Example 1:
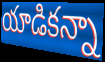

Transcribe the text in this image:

యాడికన్నా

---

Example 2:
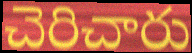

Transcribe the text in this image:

చెరిచారు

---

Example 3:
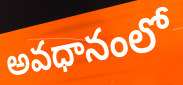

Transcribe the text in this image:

అవధానంలో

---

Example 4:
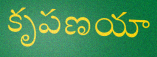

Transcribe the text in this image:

కృపణయా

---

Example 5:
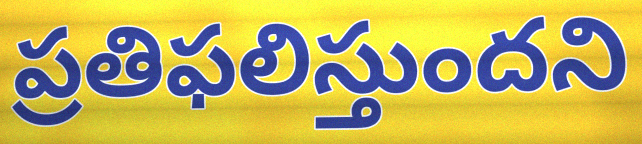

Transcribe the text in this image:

ప్రతిఫలిస్తుందని